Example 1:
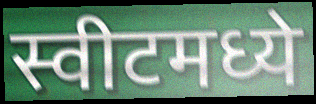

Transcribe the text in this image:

स्वीटमध्ये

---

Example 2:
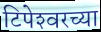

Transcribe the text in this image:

टिपेश्वरच्या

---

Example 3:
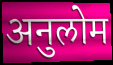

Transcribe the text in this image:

अनुलोम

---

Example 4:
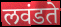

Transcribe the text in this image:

लवंडते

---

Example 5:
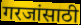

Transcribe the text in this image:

गरजांसाठी